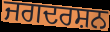
ਜਗਦਰਸ਼ਨ